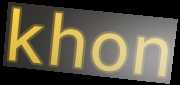
khon